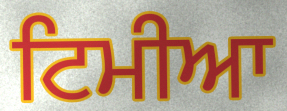
ਟਿਮੀਆ